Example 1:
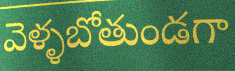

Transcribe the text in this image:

వెళ్ళబోతుండగా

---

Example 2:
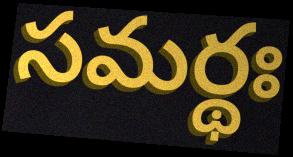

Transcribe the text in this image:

సమర్థః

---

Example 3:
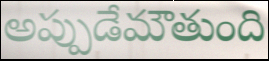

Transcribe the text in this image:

అప్పుడేమౌతుంది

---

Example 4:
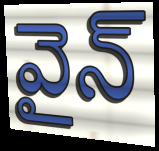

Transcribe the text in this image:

వైన్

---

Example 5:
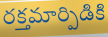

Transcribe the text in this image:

రక్తమార్పిడికి